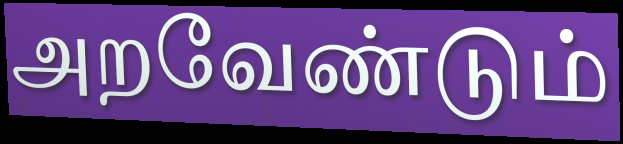
அறவேண்டும்